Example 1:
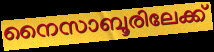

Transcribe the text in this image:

നൈസാബൂരിലേക്ക്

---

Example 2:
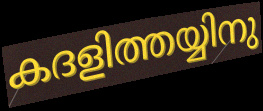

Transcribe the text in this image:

കദളിത്തയ്യിനു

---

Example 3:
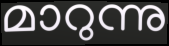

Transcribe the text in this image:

മാറുന്നു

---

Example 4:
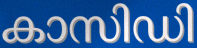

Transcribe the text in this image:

കാസിഡി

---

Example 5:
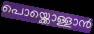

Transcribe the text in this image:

പൊയ്ക്കൊള്ളാൻ